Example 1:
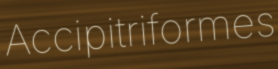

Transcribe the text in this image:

Accipitriformes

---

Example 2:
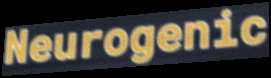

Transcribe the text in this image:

Neurogenic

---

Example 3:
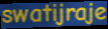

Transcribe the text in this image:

swatijraje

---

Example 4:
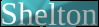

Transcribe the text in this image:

Shelton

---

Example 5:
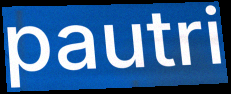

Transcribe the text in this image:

pautri